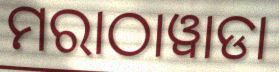
ମରାଠାୱାଡା